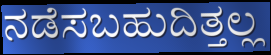
ನಡೆಸಬಹುದಿತ್ತಲ್ಲ